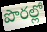
పొరల్లో